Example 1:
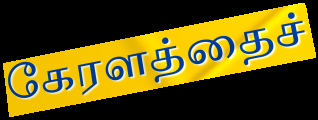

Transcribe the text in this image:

கேரளத்தைச்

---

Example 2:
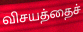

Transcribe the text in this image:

விசயத்தைச்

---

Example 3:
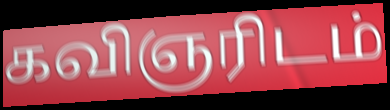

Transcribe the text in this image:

கவிஞரிடம்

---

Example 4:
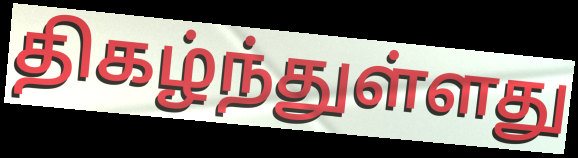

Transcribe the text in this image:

திகழ்ந்துள்ளது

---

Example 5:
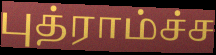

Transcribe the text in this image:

புத்ராம்ச்ச